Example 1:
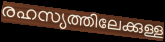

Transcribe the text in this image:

രഹസ്യത്തിലേക്കുള്ള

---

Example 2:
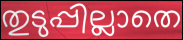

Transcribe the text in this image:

തുടുപ്പില്ലാതെ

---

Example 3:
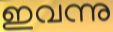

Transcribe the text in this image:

ഇവന്നു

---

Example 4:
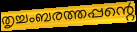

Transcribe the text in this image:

തൃച്ചംബരത്തപ്പന്റെ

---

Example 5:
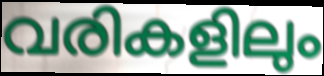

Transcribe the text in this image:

വരികളിലും